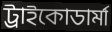
ট্রাইকোডার্মা